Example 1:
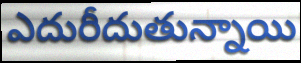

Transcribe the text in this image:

ఎదురీదుతున్నాయి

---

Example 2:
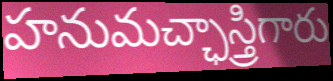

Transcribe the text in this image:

హనుమచ్ఛాస్త్రిగారు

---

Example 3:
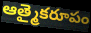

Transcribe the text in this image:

ఆత్మైకరూపం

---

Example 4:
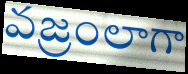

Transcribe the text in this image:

వజ్రంలాగా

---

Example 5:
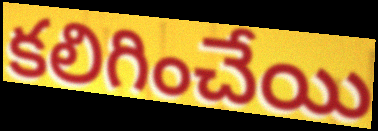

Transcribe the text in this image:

కలిగించేయి